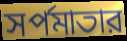
সর্পমাতার